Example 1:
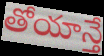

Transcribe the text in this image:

తోయాన్తే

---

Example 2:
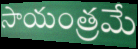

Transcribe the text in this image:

సాయంత్రమే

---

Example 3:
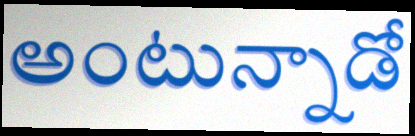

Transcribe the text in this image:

అంటున్నాడో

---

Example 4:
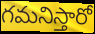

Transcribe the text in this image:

గమనిస్తారో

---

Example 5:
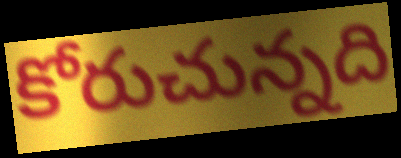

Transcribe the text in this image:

కోరుచున్నది